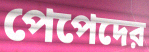
পেপেদের